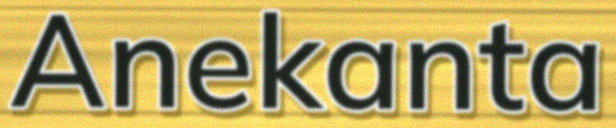
Anekanta